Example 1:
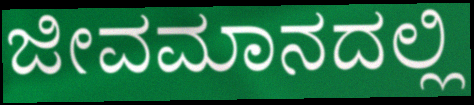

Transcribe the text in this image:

ಜೀವಮಾನದಲ್ಲಿ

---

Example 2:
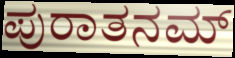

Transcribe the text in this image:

ಪುರಾತನಮ್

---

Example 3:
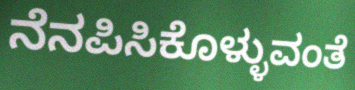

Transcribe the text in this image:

ನೆನಪಿಸಿಕೊಳ್ಳುವಂತೆ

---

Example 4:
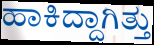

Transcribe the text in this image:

ಹಾಕಿದ್ದಾಗಿತ್ತು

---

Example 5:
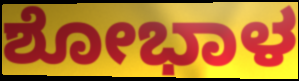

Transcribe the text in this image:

ಶೋಭಾಳ